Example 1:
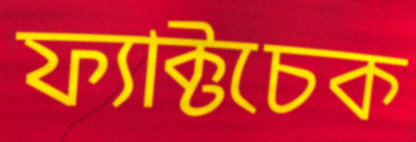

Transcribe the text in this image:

ফ্যাক্টচেক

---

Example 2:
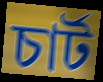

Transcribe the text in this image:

চার্ট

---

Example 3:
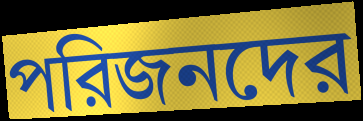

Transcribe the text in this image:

পরিজনদের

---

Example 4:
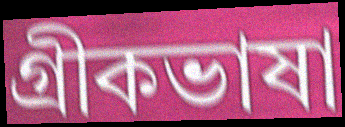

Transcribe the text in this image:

গ্রীকভাষা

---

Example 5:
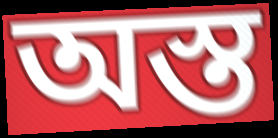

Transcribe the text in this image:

অস্ত